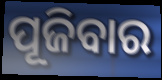
ପୂଜିବାର